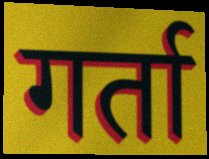
गर्ता